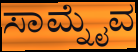
ಸಾಮ್ನೈವ